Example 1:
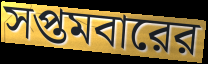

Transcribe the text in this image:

সপ্তমবারের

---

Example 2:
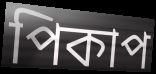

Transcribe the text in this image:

পিকাপ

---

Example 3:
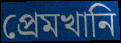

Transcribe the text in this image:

প্রেমখানি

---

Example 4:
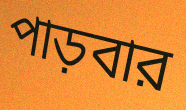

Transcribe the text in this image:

পাড়বার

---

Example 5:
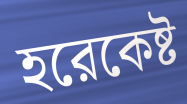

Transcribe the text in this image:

হরেকেষ্ট